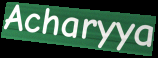
Acharyya